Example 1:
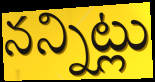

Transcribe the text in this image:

నన్నిట్లు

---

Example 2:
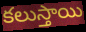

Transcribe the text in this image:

కలుస్తాయి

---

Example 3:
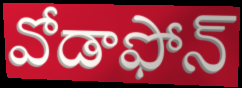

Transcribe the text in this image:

వోడాఫోన్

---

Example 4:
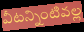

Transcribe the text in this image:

వీటన్నింటివల్ల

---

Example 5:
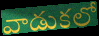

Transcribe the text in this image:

వాడుకలో